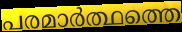
പരമാർത്ഥത്തെ